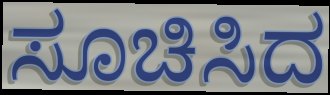
ಸೂಚಿಸಿದ